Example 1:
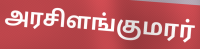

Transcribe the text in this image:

அரசிளங்குமரர்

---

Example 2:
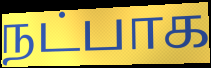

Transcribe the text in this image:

நட்பாக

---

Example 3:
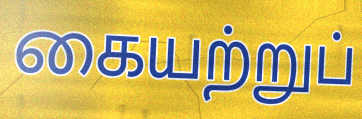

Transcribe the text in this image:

கையற்றுப்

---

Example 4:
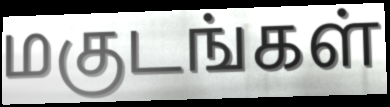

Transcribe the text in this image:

மகுடங்கள்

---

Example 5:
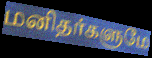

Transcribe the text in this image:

மனிதர்களுமே